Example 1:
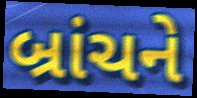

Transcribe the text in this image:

બ્રાંચને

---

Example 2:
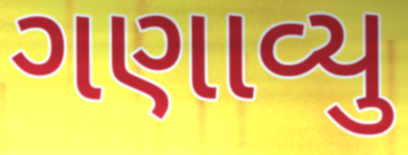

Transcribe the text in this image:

ગણાવ્યુ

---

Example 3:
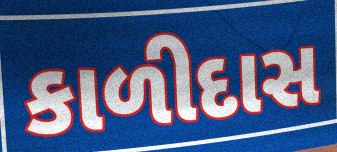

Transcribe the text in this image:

કાળીદાસ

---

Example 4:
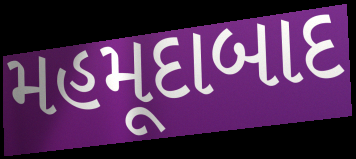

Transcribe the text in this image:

મહમૂદાબાદ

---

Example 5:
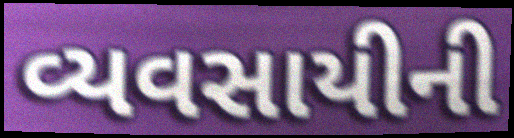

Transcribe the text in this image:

વ્યવસાયીની